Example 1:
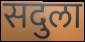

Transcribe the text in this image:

सदुला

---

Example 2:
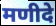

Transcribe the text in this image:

मणीदे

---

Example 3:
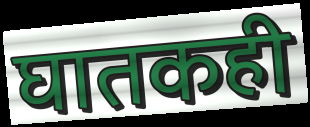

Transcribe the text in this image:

घातकही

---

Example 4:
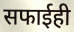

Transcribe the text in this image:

सफाईही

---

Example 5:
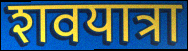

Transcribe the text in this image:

शवयात्रा